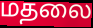
மதலை